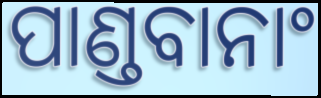
ପାଣ୍ଡବାନାଂ